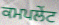
ਕਮਪਲੇਂਟ